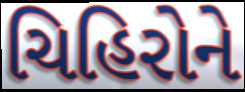
ચિહિરોને